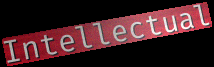
Intellectual